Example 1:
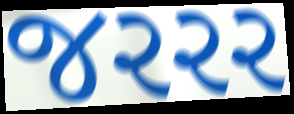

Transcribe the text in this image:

જરરર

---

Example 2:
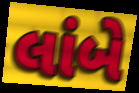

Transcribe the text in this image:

લાંબે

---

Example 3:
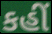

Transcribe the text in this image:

કહીં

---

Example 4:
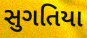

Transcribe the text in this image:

સુગતિયા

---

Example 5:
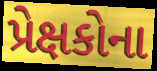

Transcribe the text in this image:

પ્રેક્ષકોના